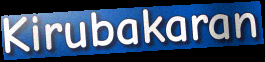
Kirubakaran